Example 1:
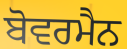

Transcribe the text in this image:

ਬੋਵਰਮੈਨ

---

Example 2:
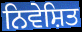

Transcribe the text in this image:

ਨਿਵੇਸ਼ਿਤ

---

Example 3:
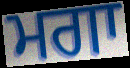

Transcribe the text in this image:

ਮਗਾ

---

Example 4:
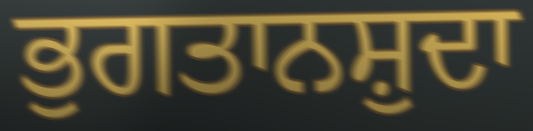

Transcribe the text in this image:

ਭੁਗਤਾਨਸ਼ੁਦਾ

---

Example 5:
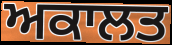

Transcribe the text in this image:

ਅਕਾਲਤ